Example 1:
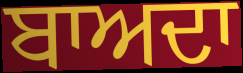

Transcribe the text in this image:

ਬਾਅਦਾ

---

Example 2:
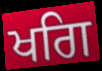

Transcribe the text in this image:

ਖਗਿ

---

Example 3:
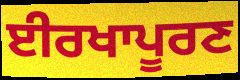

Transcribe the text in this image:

ਈਰਖਾਪੂਰਣ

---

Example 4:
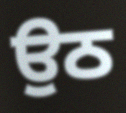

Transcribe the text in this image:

ਉਠ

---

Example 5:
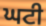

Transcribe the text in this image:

ਘਟੀ